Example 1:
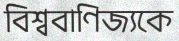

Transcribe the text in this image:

বিশ্ববাণিজ্যকে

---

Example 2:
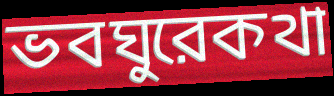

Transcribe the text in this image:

ভবঘুরেকথা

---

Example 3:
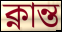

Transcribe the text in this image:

ক্নান্ত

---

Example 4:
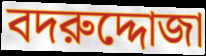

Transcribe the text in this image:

বদরুদ্দোজা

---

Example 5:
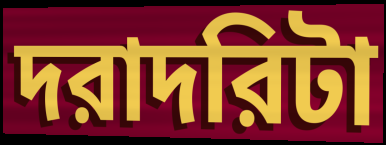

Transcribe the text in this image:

দরাদরিটা